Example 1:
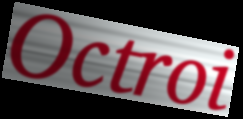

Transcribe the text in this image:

Octroi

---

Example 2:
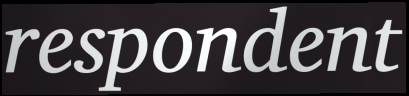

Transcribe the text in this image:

respondent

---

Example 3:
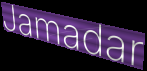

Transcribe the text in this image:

Jamadar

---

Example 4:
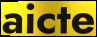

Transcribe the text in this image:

aicte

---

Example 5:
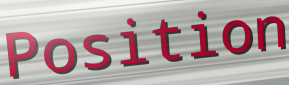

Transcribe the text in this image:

Position